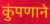
कुंपणाने